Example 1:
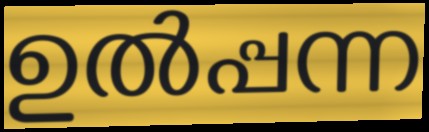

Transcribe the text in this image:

ഉൽപ്പന്ന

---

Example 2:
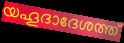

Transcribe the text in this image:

യഹൂദാദേശത്ത്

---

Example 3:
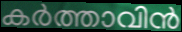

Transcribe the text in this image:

കർത്താവിൻ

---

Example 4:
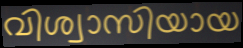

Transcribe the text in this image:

വിശ്വാസിയായ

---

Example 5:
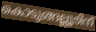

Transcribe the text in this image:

കൊടുങ്ങല്ലൂരിന്